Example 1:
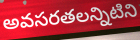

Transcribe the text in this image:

అవసరతలన్నిటిని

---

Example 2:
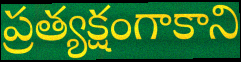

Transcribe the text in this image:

ప్రత్యక్షంగాకాని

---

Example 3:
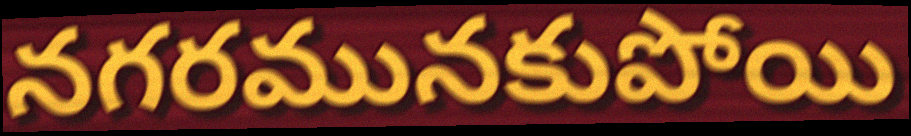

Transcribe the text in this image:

నగరమునకుపోయి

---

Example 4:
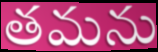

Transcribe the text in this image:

తమను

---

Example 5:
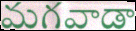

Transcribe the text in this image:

మగవాడా